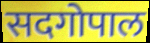
सदगोपाल